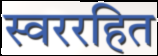
स्वररहित